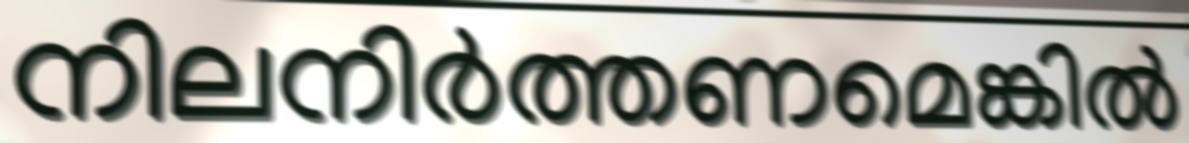
നിലനിർത്തണമെങ്കിൽ